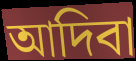
আদিবা